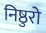
निष्ठुरो